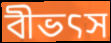
বীভৎস